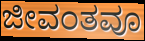
ಜೀವಂತವೂ